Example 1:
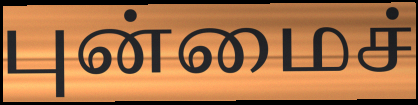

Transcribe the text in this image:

புன்மைச்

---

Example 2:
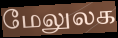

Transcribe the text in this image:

மேலுலக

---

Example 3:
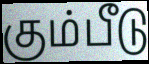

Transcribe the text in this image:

கும்பீடு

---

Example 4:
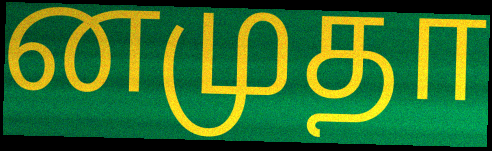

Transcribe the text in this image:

னமுதா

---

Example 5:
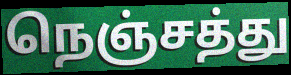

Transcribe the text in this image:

நெஞ்சத்து